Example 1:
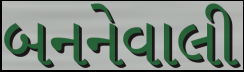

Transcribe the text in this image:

બનનેવાલી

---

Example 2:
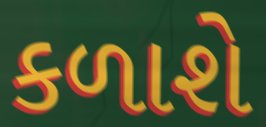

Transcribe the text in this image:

કળાશે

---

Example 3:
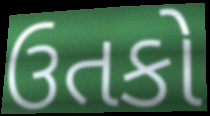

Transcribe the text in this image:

ઉતકો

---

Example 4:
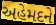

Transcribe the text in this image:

અહેમદને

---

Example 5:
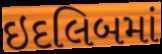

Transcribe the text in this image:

ઇદલિબમાં